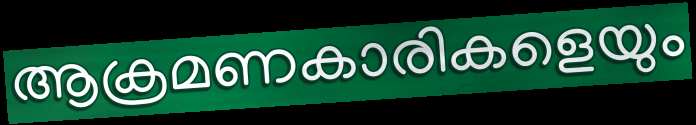
ആക്രമണകാരികളെയും